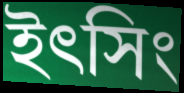
ইৎসিং